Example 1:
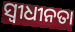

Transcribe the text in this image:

ସ୍ୱୀଧୀନତା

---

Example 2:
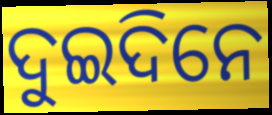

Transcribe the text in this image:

ଦୁଇଦିନେ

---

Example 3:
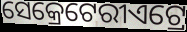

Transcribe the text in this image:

ସେକ୍ରେଟେରୀଏଟ୍ରେ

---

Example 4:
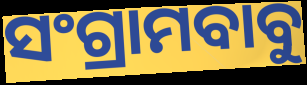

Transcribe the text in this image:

ସଂଗ୍ରାମବାବୁ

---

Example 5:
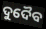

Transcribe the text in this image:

ଦୁଦୈବ